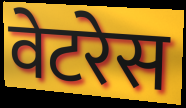
वेटरेस